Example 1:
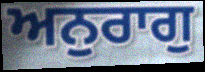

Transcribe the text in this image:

ਅਨੁਰਾਗੁ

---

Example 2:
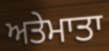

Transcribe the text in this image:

ਅਤੇਮਾਤਾ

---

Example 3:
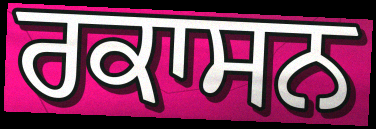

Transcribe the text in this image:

ਰਕਾਸਨ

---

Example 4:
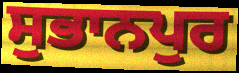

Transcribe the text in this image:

ਸੁਭਾਨਪੁਰ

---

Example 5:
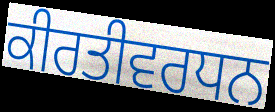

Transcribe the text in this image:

ਕੀਰਤੀਵਰਧਨ